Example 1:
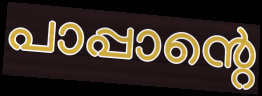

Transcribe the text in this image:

പാപ്പാന്റെ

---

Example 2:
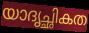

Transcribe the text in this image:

യാദൃച്ഛികത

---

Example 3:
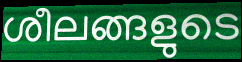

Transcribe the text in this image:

ശീലങ്ങളുടെ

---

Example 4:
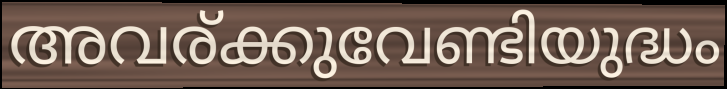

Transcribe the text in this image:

അവര്ക്കുവേണ്ടിയുദ്ധം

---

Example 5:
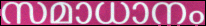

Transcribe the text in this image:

സമാധാനം